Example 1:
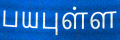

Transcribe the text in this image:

பயபுள்ள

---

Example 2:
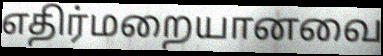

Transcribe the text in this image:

எதிர்மறையானவை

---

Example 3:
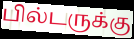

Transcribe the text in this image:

பில்டருக்கு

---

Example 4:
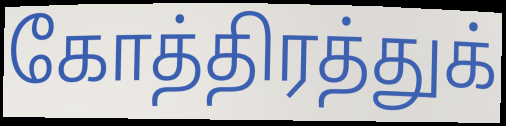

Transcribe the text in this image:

கோத்திரத்துக்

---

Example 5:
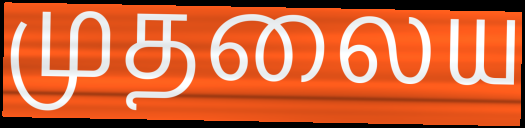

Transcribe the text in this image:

முதலைய